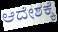
ಆದೇಶಕ್ಕೆ